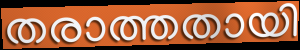
തരാത്തതായി